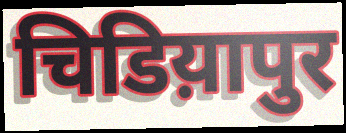
चिडिय़ापुर